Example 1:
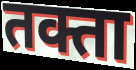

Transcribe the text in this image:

तक्ता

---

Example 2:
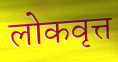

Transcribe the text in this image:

लोकवृत्त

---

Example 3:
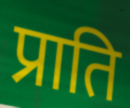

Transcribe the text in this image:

प्राति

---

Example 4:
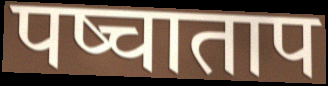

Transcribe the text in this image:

पष्चाताप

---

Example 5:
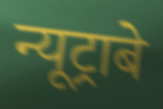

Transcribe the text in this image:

न्यूट्राबे